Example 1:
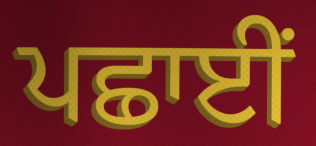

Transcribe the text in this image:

ਪਛਾਈਂ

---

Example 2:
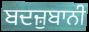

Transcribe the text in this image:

ਬਦਜ਼ੁਬਾਨੀ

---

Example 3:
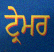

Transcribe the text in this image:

ਟ੍ਰੇਮਰ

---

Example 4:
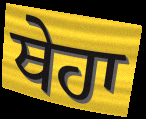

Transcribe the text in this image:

ਥੇਹਾ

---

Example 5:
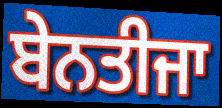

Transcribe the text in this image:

ਬੇਨਤੀਜਾ